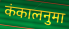
कंकालनुमा